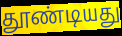
தூண்டியது